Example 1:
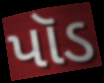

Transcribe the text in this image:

પૉડ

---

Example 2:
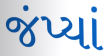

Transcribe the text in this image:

જંપ્યાં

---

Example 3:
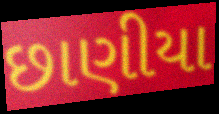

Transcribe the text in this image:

છાણીયા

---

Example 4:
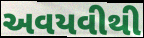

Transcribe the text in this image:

અવયવીથી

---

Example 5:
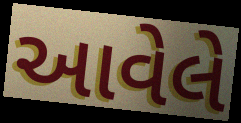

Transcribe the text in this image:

આવેલે